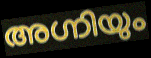
അഗ്നിയും